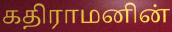
கதிராமனின்